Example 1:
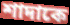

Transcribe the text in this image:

শাদাকে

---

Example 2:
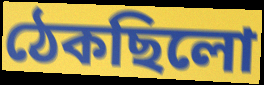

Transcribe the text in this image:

ঠেকছিলো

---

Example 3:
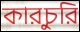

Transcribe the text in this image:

কারচুরি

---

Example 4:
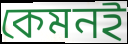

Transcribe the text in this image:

কেমনই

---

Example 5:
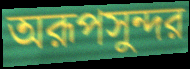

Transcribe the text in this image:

অরূপসুন্দর